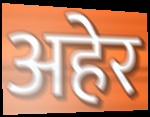
अहेर